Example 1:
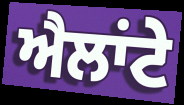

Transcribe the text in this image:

ਐਲਾਂਟੇ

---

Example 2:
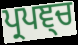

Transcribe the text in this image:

ਪ੍ਰਪਞ੍ਚ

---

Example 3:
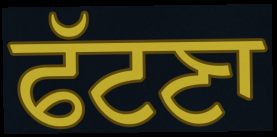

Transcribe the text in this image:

ਫੱਟਣਾ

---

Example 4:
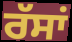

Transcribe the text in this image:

ਰੱਸਾਂ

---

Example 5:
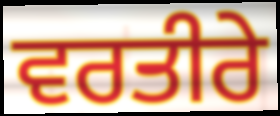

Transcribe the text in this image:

ਵਰਤੀਰੇ